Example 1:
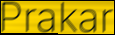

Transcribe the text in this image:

Prakar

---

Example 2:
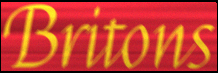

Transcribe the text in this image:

Britons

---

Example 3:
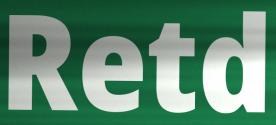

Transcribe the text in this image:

Retd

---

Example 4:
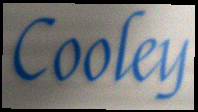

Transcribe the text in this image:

Cooley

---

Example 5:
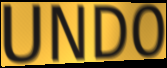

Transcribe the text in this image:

UNDO